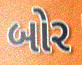
બોર